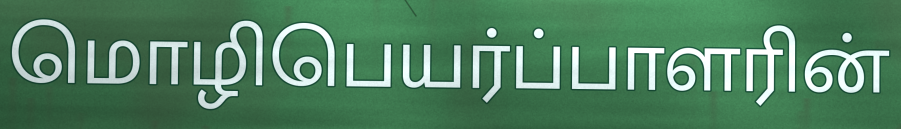
மொழிபெயர்ப்பாளரின்